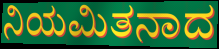
ನಿಯಮಿತನಾದ